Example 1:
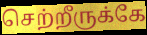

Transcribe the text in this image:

செற்றீருக்கே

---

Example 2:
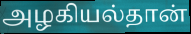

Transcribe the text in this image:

அழகியல்தான்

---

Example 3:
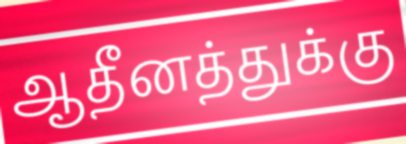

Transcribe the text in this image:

ஆதீனத்துக்கு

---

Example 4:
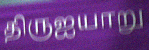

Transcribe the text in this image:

திருஐயாறு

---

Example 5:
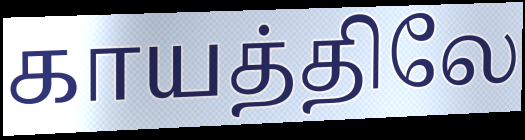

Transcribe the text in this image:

காயத்திலே